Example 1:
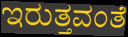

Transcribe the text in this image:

ಇರುತ್ತವಂತೆ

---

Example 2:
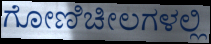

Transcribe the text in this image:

ಗೋಣಿಚೀಲಗಳಲ್ಲಿ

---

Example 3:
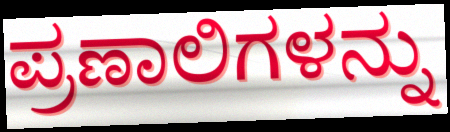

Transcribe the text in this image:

ಪ್ರಣಾಲಿಗಳನ್ನು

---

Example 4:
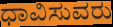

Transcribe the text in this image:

ಧಾವಿಸುವರು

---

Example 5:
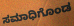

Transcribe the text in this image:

ಸಮಾಧಿಗೊಂಡ